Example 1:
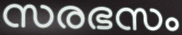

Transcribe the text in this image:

സരഭസം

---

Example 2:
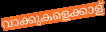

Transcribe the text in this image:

വാക്കുകളെക്കാള്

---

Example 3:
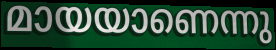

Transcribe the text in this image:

മായയാണെന്നു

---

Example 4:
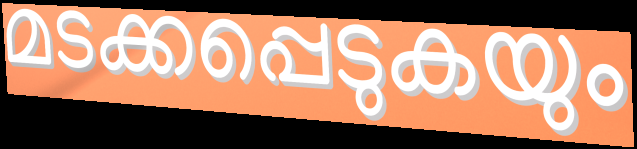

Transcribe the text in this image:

മടക്കപ്പെടുകയും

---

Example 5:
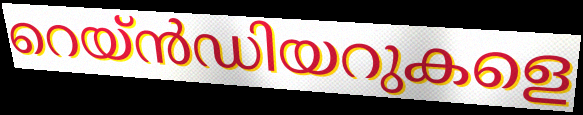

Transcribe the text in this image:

റെയ്ൻഡിയറുകളെ